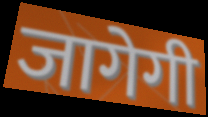
जागेगी